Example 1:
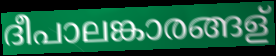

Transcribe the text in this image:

ദീപാലങ്കാരങ്ങള്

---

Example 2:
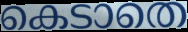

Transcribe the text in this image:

കെടാതെ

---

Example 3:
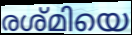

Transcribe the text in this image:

രശ്മിയെ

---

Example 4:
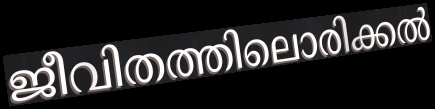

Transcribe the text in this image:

ജീവിതത്തിലൊരിക്കൽ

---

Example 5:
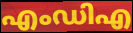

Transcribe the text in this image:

എംഡിഎ